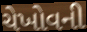
ચેખોવની